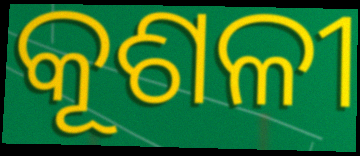
କୂଶଳୀ